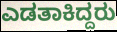
ಎಡತಾಕಿದ್ದರು